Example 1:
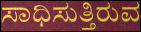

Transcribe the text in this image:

ಸಾಧಿಸುತ್ತಿರುವ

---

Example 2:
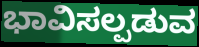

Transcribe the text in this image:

ಭಾವಿಸಲ್ಪಡುವ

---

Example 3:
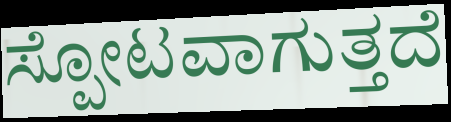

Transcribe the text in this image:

ಸ್ಪೋಟವಾಗುತ್ತದೆ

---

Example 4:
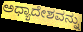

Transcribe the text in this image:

ಅಧ್ಯಾದೇಶವನ್ನು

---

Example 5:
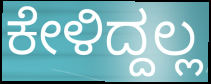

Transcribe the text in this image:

ಕೇಳಿದ್ದಲ್ಲ